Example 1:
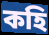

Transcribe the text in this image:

কহি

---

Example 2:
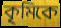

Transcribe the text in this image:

কৃমিকে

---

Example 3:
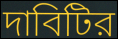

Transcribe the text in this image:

দাবিটির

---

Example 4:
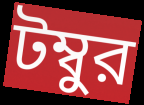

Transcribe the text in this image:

টম্বুর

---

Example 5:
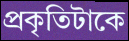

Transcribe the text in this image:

প্রকৃতিটাকে